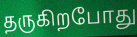
தருகிறபோது